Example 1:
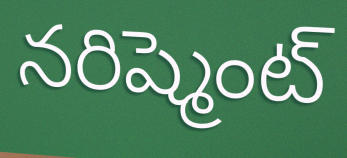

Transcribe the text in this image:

నరిష్మెంట్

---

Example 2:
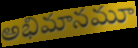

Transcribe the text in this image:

అభిమానమూ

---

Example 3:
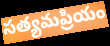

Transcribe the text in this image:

సత్యమప్రియం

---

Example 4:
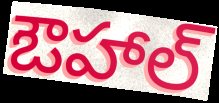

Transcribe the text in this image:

ఔహాల్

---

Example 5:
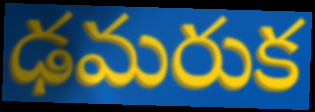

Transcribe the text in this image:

ఢమరుక